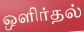
ஒளிர்தல்